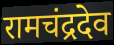
रामचंद्रदेव